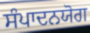
ਸੰਪਾਦਨਯੋਗ